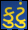
કુટું